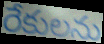
రేకులను